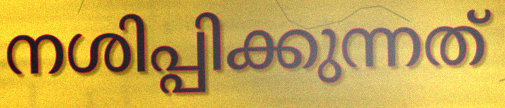
നശിപ്പിക്കുന്നത്